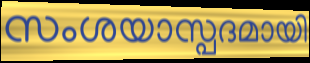
സംശയാസ്പദമായി